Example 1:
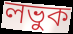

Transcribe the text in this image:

লভুক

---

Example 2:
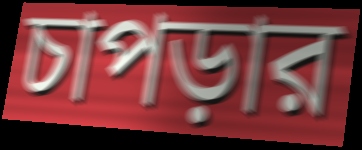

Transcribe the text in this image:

চাপড়ার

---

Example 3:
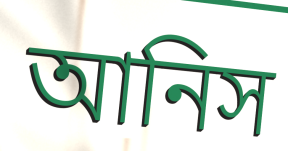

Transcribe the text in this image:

আনিস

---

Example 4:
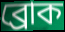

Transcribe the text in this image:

ব্রোক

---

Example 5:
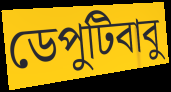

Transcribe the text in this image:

ডেপুটিবাবু